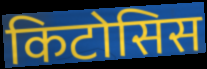
किटोसिस